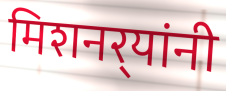
मिशनर्‍यांनी